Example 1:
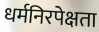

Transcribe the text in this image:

धर्मनिरपेक्षता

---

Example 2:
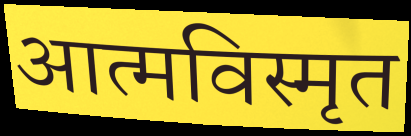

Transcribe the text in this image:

आत्मविस्मृत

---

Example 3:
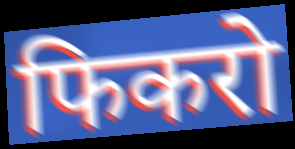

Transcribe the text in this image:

फिकरो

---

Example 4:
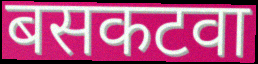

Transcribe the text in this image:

बसकटवा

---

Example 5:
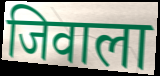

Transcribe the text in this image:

जिवाला